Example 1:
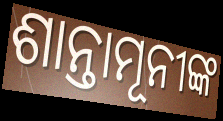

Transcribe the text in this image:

ଶାନ୍ତାମୂନୀଙ୍କ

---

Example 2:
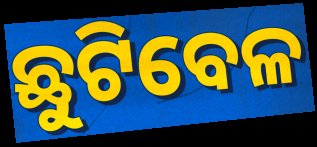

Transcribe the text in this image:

ଛୁଟିବେଳ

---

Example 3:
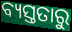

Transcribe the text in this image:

ବ୍ୟସ୍ତତାରୁ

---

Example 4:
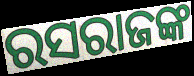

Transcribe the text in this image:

ରସରାଜଙ୍କ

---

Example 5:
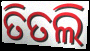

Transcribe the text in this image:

ତିତଲି